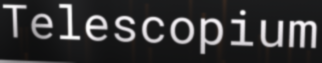
Telescopium